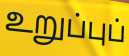
உறுப்புப்